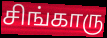
சிங்காரு